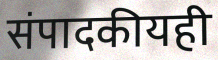
संपादकीयही